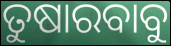
ତୁଷାରବାବୁ